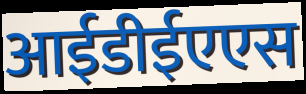
आईडीईएएस